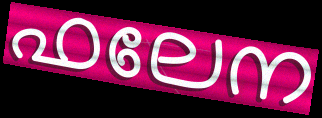
ഫലേന